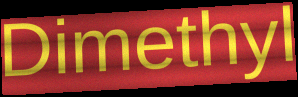
Dimethyl